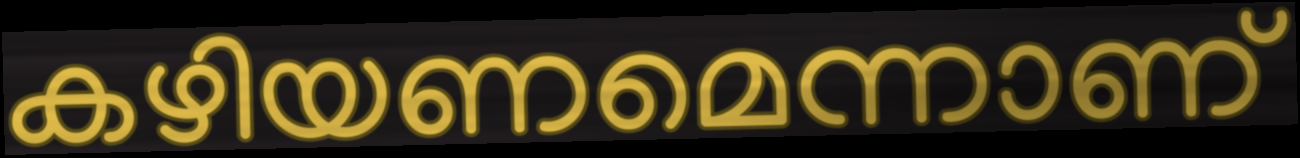
കഴിയണമെന്നാണ്